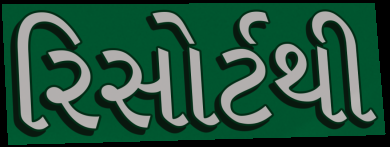
રિસોર્ટથી